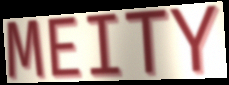
MEITY